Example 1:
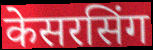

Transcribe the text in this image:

केसरसिंग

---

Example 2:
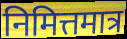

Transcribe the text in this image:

निमित्तमात्र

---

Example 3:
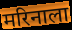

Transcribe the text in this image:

मरिनाला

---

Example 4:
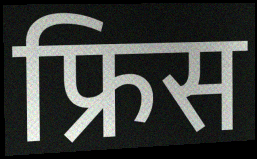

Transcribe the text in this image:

फ्रिस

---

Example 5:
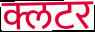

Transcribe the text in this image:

क्लटर